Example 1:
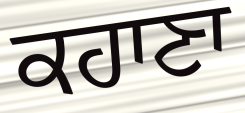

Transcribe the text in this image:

ਕਹਾਣਾ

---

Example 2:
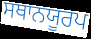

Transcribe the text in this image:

ਸਥਾਨਯੂਰਪ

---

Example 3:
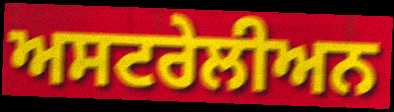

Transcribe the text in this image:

ਅਸਟਰੇਲੀਅਨ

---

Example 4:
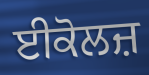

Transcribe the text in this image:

ਈਕੋਲਜ਼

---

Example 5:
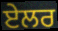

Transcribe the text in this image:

ਏਲਰ